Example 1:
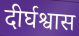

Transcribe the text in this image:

दीर्घश्वास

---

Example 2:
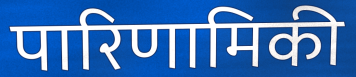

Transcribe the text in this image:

पारिणामिकी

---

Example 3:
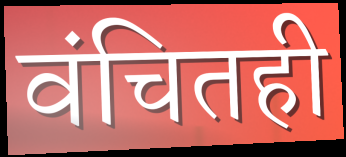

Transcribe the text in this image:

वंचितही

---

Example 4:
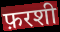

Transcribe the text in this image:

फ़रशी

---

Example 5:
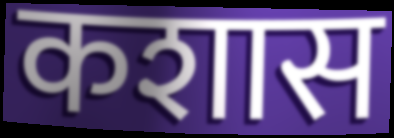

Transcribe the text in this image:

कशास